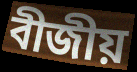
বীজীয়